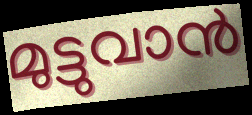
മുട്ടുവാൻ